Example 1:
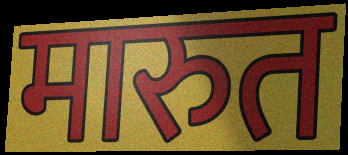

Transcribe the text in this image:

मारुत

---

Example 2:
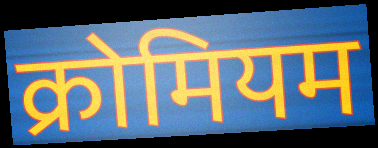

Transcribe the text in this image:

क्रोमियम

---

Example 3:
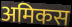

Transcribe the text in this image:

अमिकस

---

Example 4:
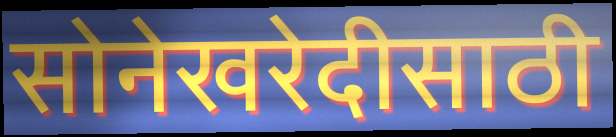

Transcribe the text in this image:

सोनेखरेदीसाठी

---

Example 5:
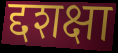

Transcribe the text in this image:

द्दशक्षा